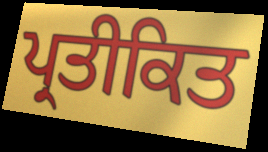
ਪ੍ਰਤੀਕਿਤ